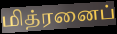
மித்ரனைப்